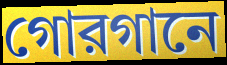
গোরগানে